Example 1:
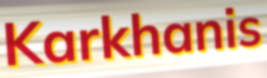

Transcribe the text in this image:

Karkhanis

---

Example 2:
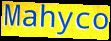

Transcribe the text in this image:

Mahyco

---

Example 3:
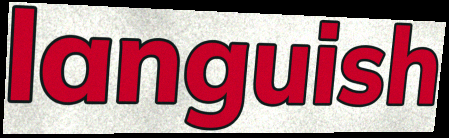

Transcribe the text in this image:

languish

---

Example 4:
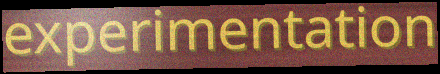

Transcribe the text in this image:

experimentation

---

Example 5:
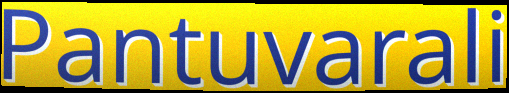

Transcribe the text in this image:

Pantuvarali